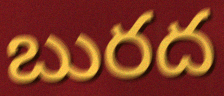
బురద